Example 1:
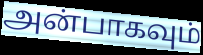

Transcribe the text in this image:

அன்பாகவும்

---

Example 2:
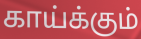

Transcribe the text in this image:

காய்க்கும்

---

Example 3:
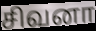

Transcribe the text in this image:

சிவனா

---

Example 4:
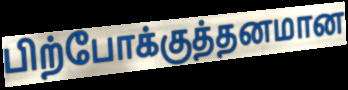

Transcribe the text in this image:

பிற்போக்குத்தனமான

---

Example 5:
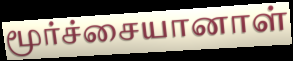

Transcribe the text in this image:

மூர்ச்சையானாள்